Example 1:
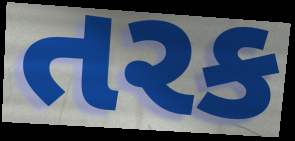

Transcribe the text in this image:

તરક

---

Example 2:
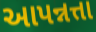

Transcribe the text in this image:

આપન્નત્તા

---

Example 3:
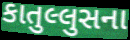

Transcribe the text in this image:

કાતુલ્લુસના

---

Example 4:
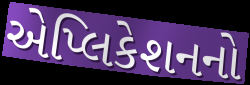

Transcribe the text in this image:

એપ્લિકેશનનો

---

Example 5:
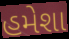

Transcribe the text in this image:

હમેશા